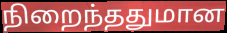
நிறைந்ததுமான